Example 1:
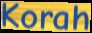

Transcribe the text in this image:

Korah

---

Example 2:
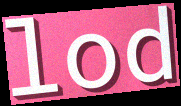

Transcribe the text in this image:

lod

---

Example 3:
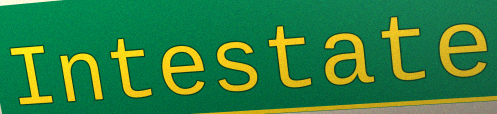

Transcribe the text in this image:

Intestate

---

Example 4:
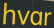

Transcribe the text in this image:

hvar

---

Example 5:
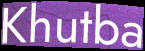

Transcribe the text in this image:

Khutba